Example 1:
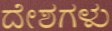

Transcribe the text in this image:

ದೇಶಗಳು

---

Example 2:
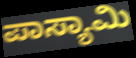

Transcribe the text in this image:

ಪಾಸ್ಯಾಮಿ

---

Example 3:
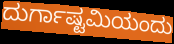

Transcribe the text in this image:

ದುರ್ಗಾಷ್ಟಮಿಯಂದು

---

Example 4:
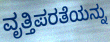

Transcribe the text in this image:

ವೃತ್ತಿಪರತೆಯನ್ನು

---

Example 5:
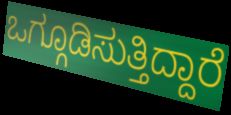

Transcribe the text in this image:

ಒಗ್ಗೂಡಿಸುತ್ತಿದ್ದಾರೆ